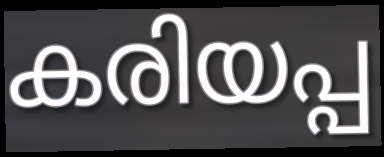
കരിയപ്പ